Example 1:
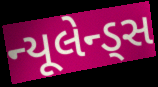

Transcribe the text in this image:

ન્યૂલેન્ડ્સ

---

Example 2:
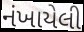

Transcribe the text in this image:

નંખાયેલી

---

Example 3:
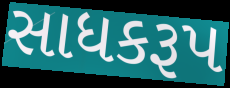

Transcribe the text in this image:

સાધકરૂપ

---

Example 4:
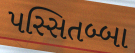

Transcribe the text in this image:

પસ્સિતબ્બા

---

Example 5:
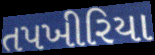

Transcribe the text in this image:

તપખીરિયા